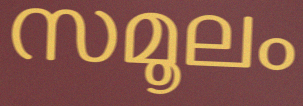
സമൂലം